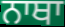
ਨਾਥਾ